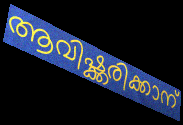
ആവിഷ്ക്കരിക്കാന്